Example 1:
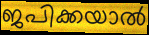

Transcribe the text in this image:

ജപിക്കയാൽ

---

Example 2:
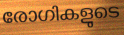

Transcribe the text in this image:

രോഗികളുടെ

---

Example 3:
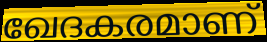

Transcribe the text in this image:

ഖേദകരമാണ്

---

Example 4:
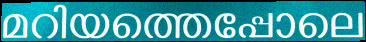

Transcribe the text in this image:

മറിയത്തെപ്പോലെ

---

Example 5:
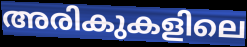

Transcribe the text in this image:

അരികുകളിലെ